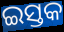
ଇସ୍ତକ